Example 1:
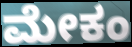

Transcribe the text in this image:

ಮೇಕಂ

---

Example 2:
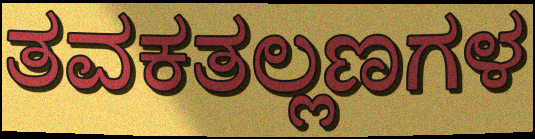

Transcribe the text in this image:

ತವಕತಲ್ಲಣಗಳ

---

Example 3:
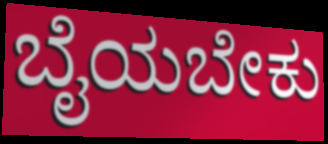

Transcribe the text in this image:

ಬೈಯಬೇಕು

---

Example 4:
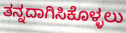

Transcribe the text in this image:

ತನ್ನದಾಗಿಸಿಕೊಳ್ಳಲು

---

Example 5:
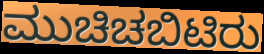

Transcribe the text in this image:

ಮುಚಿಚಬಿಟಿರು